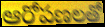
ఆరోపణలతో